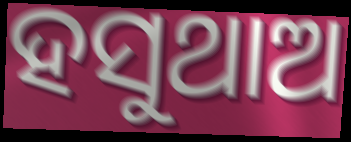
ହସୁଥାଅ